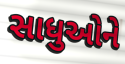
સાધુઓને